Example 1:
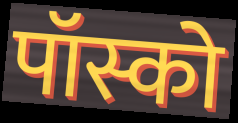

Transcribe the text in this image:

पॉस्‍को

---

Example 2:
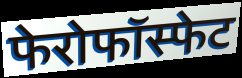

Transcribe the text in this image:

फेरोफॉस्फेट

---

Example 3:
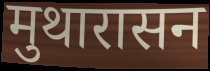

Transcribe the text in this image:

मुथारासन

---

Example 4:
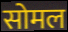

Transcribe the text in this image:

सोमल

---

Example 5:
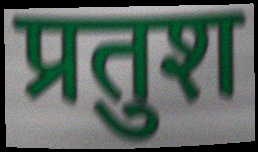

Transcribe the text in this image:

प्रतुश